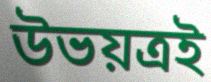
উভয়ত্রই